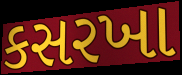
કસરખા